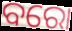
ବରୋ